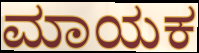
ಮಾಯಕ